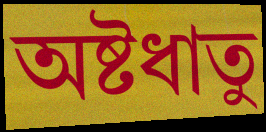
অষ্টধাতু